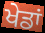
ਖੇਡਾਂ